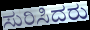
ಸುರಿಸಿದರು